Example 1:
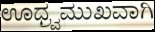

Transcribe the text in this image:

ಊಧ್ರ್ವಮುಖವಾಗಿ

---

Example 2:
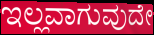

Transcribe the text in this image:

ಇಲ್ಲವಾಗುವುದೇ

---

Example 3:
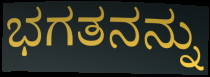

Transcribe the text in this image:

ಭಗತನನ್ನು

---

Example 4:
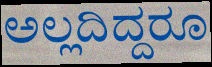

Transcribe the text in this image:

ಅಲ್ಲದಿದ್ದರೂ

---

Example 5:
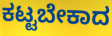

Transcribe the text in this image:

ಕಟ್ಟಬೇಕಾದ